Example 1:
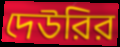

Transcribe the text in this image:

দেউরির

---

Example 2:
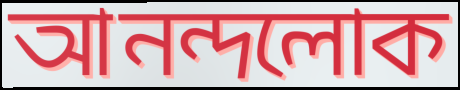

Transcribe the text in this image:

আনন্দলোক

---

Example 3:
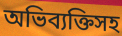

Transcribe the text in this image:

অভিব্যক্তিসহ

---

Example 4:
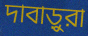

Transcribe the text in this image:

দাবাড়ুরা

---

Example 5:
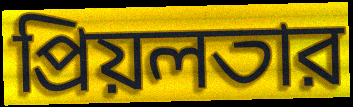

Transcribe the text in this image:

প্রিয়লতার